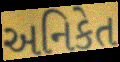
અનિકેત